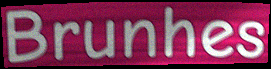
Brunhes